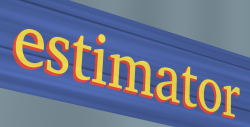
estimator